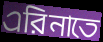
এরিনাতে